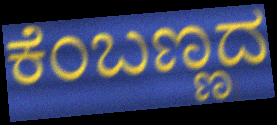
ಕೆಂಬಣ್ಣದ